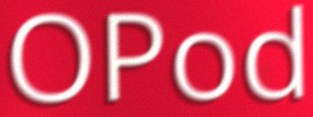
OPod